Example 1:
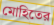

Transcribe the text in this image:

মোহিতের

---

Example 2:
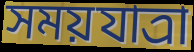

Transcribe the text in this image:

সময়যাত্রা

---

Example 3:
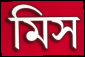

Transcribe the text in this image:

মিস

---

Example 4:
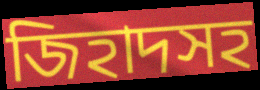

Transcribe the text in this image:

জিহাদসহ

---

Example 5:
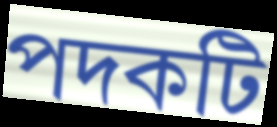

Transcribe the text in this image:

পদকটি